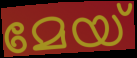
മേയ്